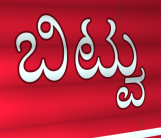
ಬಿಟ್ವು